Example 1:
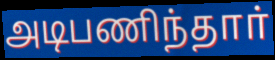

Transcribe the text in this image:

அடிபணிந்தார்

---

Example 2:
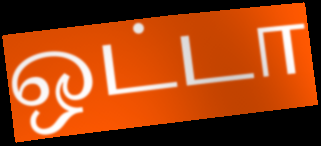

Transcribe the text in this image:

ஒட்டா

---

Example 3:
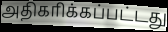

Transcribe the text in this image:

அதிகரிக்கப்பட்டது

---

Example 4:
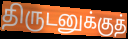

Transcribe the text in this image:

திருடனுக்குத்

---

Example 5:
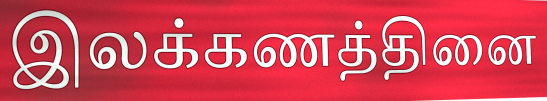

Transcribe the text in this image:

இலக்கணத்தினை